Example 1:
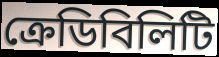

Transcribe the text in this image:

ক্রেডিবিলিটি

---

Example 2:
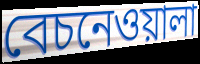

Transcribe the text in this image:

বেচনেওয়ালা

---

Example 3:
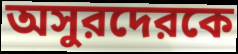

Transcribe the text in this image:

অসুরদেরকে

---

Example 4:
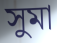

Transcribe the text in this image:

সুমা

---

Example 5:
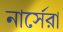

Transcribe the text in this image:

নার্সেরা